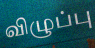
விழுப்பு